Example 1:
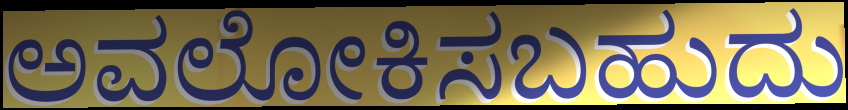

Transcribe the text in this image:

ಅವಲೋಕಿಸಬಹುದು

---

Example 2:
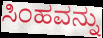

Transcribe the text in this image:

ಸಿಂಹವನ್ನು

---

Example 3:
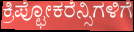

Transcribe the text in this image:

ಕ್ರಿಪ್ಟೋಕರೆನ್ಸಿಗಳಿಗೆ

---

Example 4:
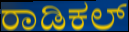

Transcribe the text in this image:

ರಾಡಿಕಲ್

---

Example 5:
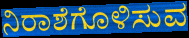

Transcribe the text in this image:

ನಿರಾಶೆಗೊಳಿಸುವ